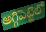
అగ్గిపెట్టెలో